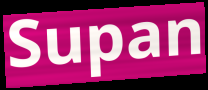
Supan